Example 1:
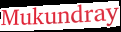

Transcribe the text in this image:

Mukundray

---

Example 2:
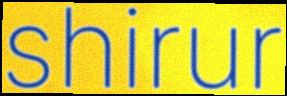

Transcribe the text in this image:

shirur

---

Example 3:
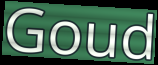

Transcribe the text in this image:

Goud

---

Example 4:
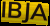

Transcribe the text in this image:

IBJA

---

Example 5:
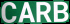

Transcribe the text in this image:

CARB